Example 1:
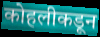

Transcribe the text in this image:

कोहलीकडून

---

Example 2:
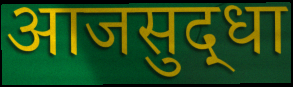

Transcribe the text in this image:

आजसुद्धा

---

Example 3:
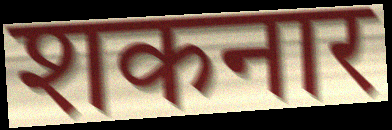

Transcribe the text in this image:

शकनार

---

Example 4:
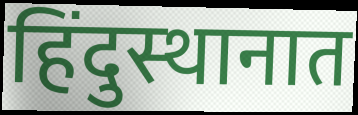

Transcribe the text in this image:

हिंदुस्थानात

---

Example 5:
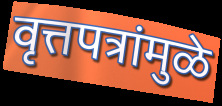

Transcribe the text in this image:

वृत्तपत्रांमुळे